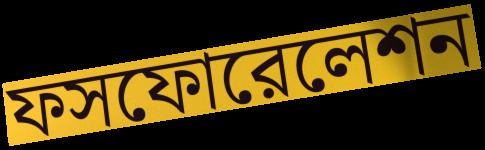
ফসফোরেলেশন